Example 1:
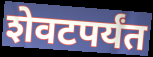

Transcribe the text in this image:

शेवटपर्यंत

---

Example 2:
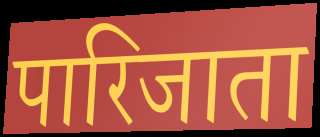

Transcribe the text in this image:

पारिजाता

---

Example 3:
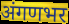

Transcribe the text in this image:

अंगणभर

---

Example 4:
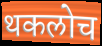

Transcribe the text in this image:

थकलोच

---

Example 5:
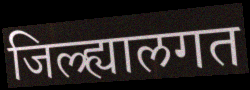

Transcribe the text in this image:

जिल्ह्यालगत